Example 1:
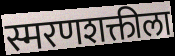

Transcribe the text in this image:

स्मरणशक्तीला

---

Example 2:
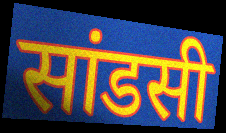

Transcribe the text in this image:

सांडसी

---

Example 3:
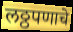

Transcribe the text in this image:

लठ्ठपणाचे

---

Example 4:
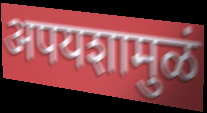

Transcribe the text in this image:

अपयशामुळं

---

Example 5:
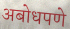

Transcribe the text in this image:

अबोधपणे